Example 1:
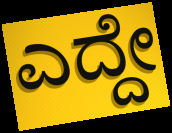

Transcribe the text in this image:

ಎದ್ದೇ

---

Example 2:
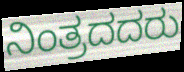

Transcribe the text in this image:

ನಿಂತ್ರದದರು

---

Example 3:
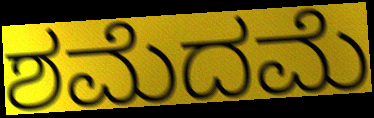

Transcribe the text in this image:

ಶಮೆದಮೆ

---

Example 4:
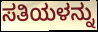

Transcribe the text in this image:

ಸತಿಯಳನ್ನು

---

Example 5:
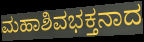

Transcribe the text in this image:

ಮಹಾಶಿವಭಕ್ತನಾದ